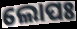
ଲୋପଃ